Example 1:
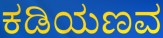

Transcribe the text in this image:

ಕಡಿಯಣವ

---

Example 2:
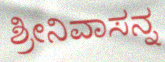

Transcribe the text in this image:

ಶ್ರೀನಿವಾಸನ್ನ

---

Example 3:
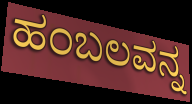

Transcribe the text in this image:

ಹಂಬಲವನ್ನ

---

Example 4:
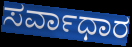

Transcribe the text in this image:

ಸರ್ವಾಧಾರ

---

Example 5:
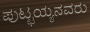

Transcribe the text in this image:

ಪುಟ್ಟಯ್ಯನವರು